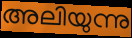
അലിയുന്നു